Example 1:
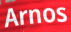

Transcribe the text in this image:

Arnos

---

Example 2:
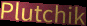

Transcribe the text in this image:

Plutchik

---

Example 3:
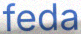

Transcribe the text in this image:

feda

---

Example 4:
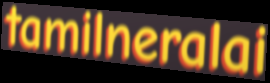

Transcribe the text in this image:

tamilneralai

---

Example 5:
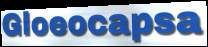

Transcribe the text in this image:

Gloeocapsa